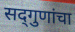
सद्‍गुणांचा